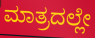
ಮಾತ್ರದಲ್ಲೇ